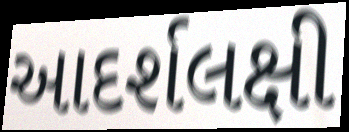
આદર્શલક્ષી